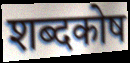
शब्दकोष